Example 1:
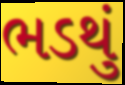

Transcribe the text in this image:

ભડથું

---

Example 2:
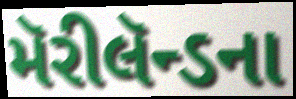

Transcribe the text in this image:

મૅરીલૅન્ડના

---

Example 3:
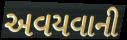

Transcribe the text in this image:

અવયવાની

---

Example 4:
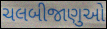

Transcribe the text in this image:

ચલબીજાણુઓ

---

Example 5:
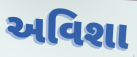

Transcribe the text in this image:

અવિશા